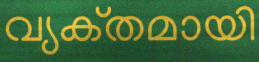
വ്യക്‌തമായി